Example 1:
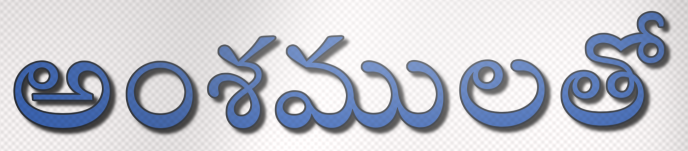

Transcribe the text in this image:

అంశములతో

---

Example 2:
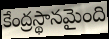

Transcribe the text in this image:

కేంద్రస్థానమైంది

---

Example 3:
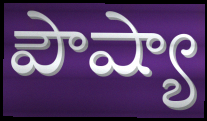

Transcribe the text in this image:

పౌష్యా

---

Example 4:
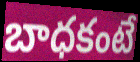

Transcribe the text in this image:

బాధకంటే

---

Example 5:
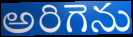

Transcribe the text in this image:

అరిగెను